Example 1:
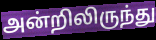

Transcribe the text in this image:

அன்றிலிருந்து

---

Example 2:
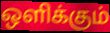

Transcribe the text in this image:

ஒளிக்கும்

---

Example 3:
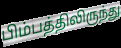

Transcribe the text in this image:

பிம்பத்திலிருந்து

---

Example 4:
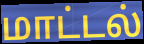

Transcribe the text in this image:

மாட்டல்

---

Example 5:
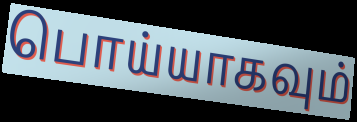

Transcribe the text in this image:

பொய்யாகவும்